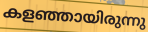
കളഞ്ഞായിരുന്നു